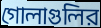
গোলাগুলির